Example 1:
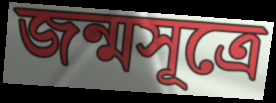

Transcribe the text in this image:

জন্মসূত্রে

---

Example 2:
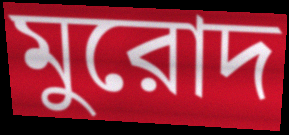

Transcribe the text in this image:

মুরোদ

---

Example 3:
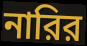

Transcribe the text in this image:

নারির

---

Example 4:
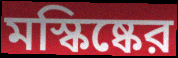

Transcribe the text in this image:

মস্কিষ্কের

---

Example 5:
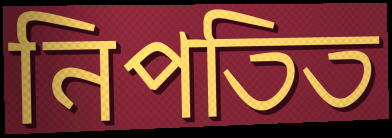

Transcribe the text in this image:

নিপতিত